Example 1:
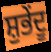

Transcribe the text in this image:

ਸ਼ੁਭੇਂਦੂ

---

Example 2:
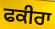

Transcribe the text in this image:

ਫਕੀਰਾ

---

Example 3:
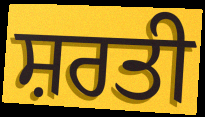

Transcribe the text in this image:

ਸ਼ਰਤੀ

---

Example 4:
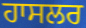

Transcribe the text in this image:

ਹਾਸਲਰ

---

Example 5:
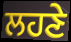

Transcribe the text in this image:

ਲਹਣੇ